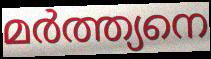
മർത്ത്യനെ